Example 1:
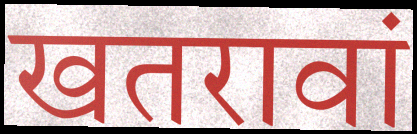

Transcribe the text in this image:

खतरावां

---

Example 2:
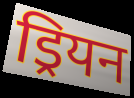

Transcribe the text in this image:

ड्रियन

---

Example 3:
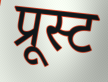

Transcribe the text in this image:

प्रूस्ट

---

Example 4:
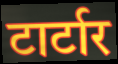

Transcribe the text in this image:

टार्टार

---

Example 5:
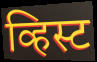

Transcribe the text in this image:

व्हिस्ट